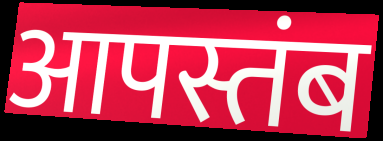
आपस्तंब